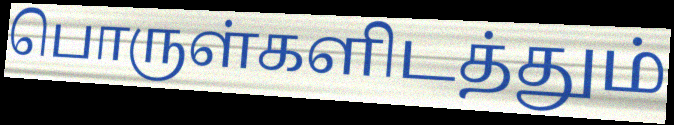
பொருள்களிடத்தும்